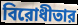
বিরোধীতার